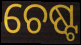
ଚେଷ୍ଟ